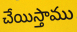
చేయిస్తాము